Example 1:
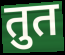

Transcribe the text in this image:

तुत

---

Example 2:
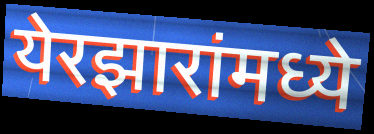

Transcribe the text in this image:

येरझारांमध्ये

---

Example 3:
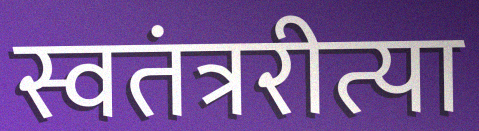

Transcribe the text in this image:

स्वतंत्ररीत्या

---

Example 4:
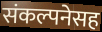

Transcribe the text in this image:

संकल्पनेसह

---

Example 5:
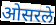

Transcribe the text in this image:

ओसरले